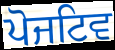
ਪੋਜਟਿਵ